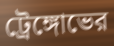
ট্রেঙ্গোভের